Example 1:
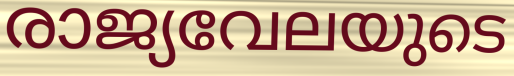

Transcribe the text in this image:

രാജ്യവേലയുടെ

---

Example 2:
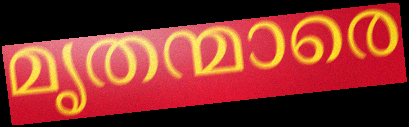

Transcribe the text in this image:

മൃതന്മാരെ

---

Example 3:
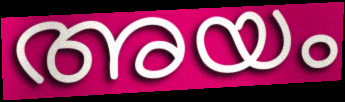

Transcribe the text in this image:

അയം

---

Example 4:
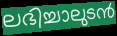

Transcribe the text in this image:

ലഭിച്ചാലുടൻ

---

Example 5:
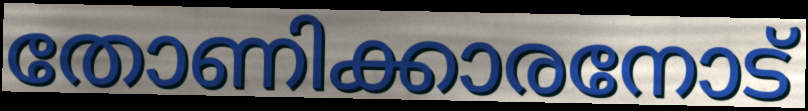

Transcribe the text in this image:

തോണിക്കാരനോട്